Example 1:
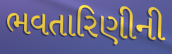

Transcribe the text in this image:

ભવતારિણીની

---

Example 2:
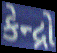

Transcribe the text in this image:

કેન્દ્રો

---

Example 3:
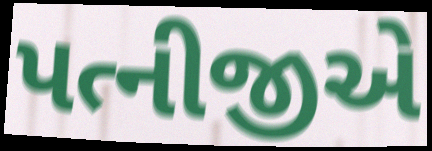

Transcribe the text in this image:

પત્નીજીએ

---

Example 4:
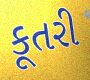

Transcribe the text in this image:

કૂતરી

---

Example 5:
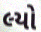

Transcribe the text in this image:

લ્યો